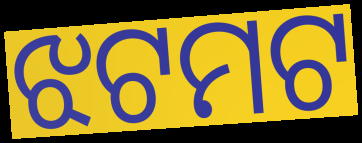
ଝଟମଟ